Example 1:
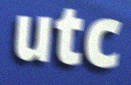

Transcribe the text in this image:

utc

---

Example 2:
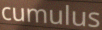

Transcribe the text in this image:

cumulus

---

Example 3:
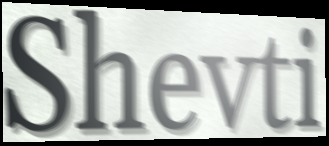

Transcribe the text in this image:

Shevti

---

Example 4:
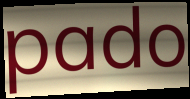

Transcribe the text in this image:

pado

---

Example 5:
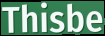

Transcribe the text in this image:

Thisbe